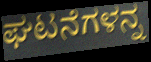
ಘಟನೆಗಳನ್ನ